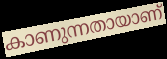
കാണുന്നതായാണ്